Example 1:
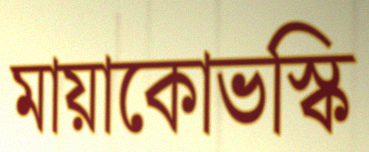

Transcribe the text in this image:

মায়াকোভস্কি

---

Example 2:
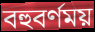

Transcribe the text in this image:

বহুবর্ণময়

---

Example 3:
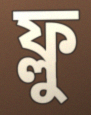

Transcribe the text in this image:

ফ্লু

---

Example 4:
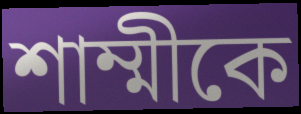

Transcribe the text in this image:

শাম্মীকে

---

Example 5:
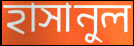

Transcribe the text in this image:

হাসানুল